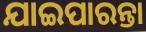
ଯାଇପାରନ୍ତା